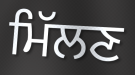
ਮਿੱਲਣ